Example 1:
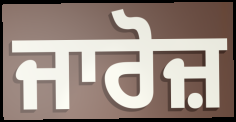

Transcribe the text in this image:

ਜਾਰੋਜ਼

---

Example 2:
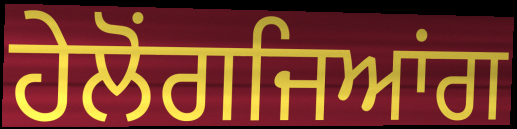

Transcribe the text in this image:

ਹੇਲੋਂਗਜਿਆਂਗ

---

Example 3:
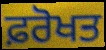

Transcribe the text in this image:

ਫ਼ਰੋਖਤ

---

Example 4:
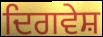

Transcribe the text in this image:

ਦਿਗਵੇਸ਼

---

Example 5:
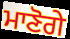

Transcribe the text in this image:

ਮਾਣੋਗੇ